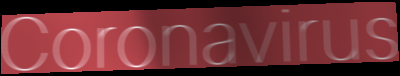
Coronavirus